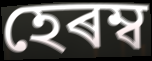
হেৰম্ব